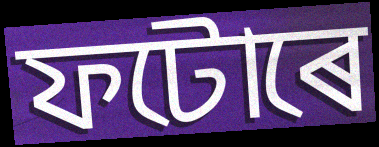
ফটোৰে